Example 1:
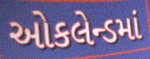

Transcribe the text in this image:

ઓકલેન્ડમાં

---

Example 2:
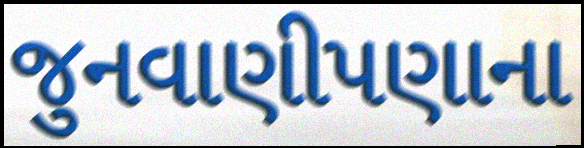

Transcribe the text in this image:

જુનવાણીપણાના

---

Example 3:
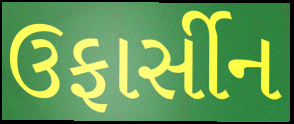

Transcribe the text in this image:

ઉફાર્સીન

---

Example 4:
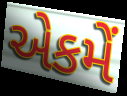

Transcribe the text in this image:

એકમેં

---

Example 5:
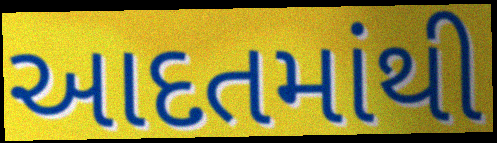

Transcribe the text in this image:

આદતમાંથી